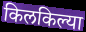
किलकिल्या